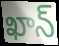
ఖాన్